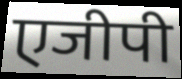
एजीपी